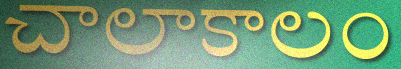
చాలాకాలం